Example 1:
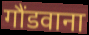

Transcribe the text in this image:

गौंडवाना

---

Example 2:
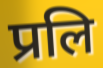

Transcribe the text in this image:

प्रलि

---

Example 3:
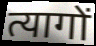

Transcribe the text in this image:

त्यागों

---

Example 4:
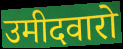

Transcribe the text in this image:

उमीदवारो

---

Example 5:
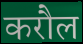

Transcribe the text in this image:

करौल